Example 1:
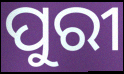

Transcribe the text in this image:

ପୁରୀ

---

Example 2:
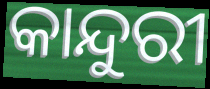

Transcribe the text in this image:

କାନ୍ଦୁରୀ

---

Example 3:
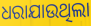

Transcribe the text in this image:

ଧରାଯାଉଥିଲା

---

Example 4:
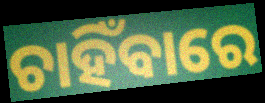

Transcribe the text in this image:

ଚାହିଁବାରେ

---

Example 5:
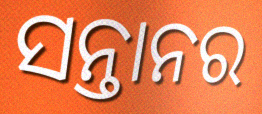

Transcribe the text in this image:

ସନ୍ତାନର